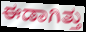
ಈಡಾಗಿತ್ತು